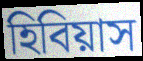
হিবিয়াস